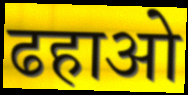
ढहाओ